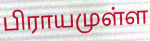
பிராயமுள்ள